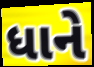
ધાને